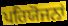
ਪਰਿਯੋਜਨਾਂ